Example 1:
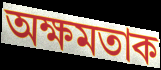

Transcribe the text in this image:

অক্ষমতাক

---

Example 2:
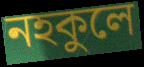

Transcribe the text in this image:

নহকুলে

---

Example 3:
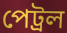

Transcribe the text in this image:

পেট্ৰল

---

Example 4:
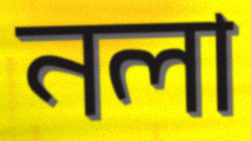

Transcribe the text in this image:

নলা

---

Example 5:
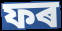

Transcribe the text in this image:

ফৰ